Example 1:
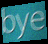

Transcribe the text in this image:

bye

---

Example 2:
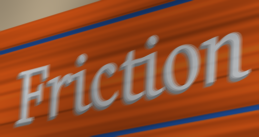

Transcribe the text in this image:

Friction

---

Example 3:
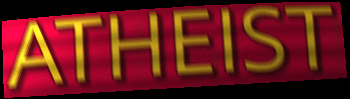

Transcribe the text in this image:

ATHEIST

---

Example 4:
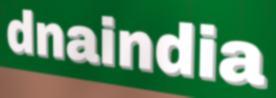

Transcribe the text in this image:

dnaindia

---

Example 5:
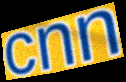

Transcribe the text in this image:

cnn